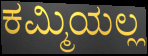
ಕಮ್ಮಿಯಲ್ಲ